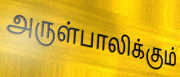
அருள்பாலிக்கும்